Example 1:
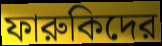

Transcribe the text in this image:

ফারুকিদের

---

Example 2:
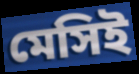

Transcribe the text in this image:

মেসিই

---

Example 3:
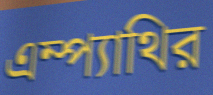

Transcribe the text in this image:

এম্প্যাথির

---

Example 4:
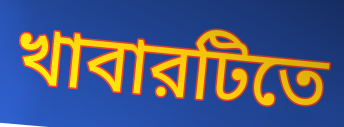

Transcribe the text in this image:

খাবারটিতে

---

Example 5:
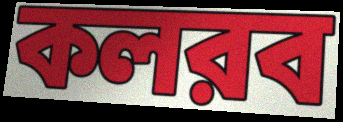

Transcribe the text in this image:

কলরব